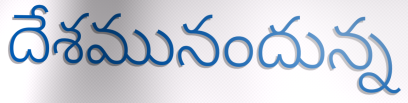
దేశమునందున్న